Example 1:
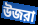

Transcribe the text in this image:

উজরা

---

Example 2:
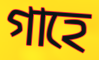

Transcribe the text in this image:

গাহে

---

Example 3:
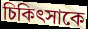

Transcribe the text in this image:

চিকিৎসাকে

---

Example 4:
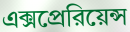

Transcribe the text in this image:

এক্সপ্রেরিয়েন্স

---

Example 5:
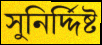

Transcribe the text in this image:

সুনির্দ্দিষ্ট